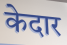
केदार